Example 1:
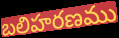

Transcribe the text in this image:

బలిహరణము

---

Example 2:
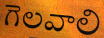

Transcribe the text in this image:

గెలవాలి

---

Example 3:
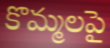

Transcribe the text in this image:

కొమ్మలపై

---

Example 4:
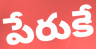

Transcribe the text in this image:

పేరుకే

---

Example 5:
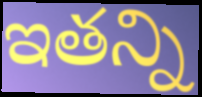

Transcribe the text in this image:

ఇతన్ని